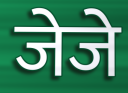
जेजे